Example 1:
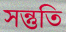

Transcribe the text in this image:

সন্তুতি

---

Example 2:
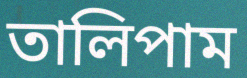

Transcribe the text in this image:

তালিপাম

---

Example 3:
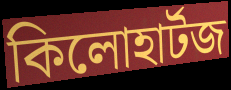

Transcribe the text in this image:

কিলোহার্টজ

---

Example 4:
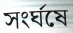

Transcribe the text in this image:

সংর্ঘষে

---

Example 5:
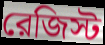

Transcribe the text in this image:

রেজিস্ট